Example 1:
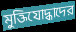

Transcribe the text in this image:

মুক্তিযোদ্ধাদের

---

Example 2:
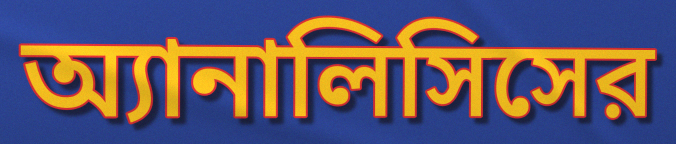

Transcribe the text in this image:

অ্যানালিসিসের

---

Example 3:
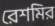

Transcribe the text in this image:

রেশমির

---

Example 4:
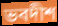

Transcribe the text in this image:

ভবদীশ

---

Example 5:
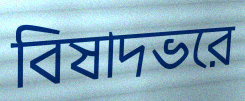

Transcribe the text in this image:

বিষাদভরে